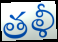
తళీ